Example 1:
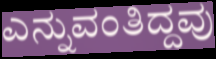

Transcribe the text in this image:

ಎನ್ನುವಂತಿದ್ದವು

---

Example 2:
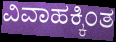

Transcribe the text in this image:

ವಿವಾಹಕ್ಕಿಂತ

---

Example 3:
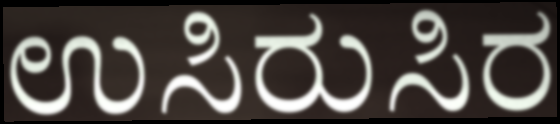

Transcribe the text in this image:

ಉಸಿರುಸಿರ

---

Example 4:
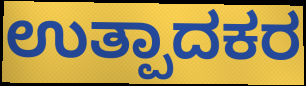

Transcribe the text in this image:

ಉತ್ಪಾದಕರ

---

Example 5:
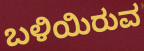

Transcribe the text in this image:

ಬಳಿಯಿರುವ